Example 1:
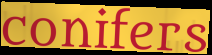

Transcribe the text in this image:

conifers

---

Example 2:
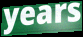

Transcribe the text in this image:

years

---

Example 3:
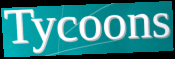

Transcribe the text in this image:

Tycoons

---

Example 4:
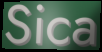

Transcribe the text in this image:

Sica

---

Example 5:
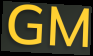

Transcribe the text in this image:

GM